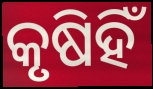
କୃଷିହିଁ